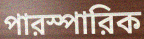
পারস্পারিক